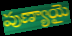
పుణ్యాయై